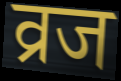
व्रज